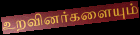
உறவினர்களையும்